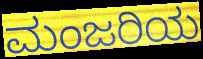
ಮಂಜರಿಯ